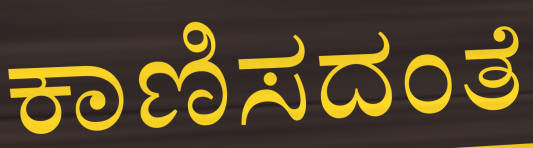
ಕಾಣಿಸದಂತೆ